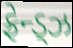
ફ્રેન્ડ્ઝ